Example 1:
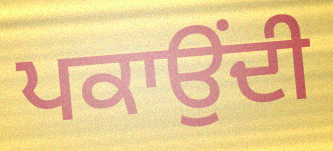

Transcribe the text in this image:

ਪਕਾਉਂਦੀ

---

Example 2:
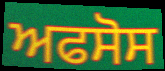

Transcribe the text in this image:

ਅਫਸੋਸ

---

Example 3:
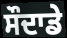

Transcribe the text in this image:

ਸੌਦਾਡੇ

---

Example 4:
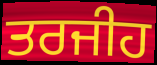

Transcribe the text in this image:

ਤਰਜੀਹ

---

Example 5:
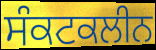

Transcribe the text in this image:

ਸੰਕਟਕਲੀਨ